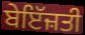
ਬੇਇੱਜ਼ਤੀ